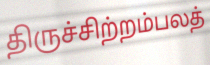
திருச்சிற்றம்பலத்